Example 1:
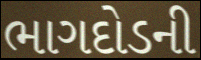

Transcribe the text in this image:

ભાગદોડની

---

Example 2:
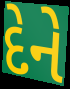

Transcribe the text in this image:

દેને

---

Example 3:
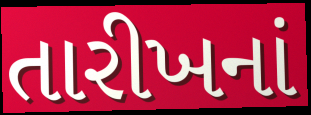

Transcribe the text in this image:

તારીખનાં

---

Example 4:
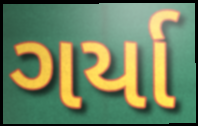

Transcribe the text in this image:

ગર્યા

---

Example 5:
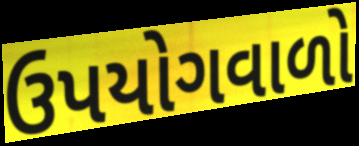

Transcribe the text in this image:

ઉપયોગવાળો